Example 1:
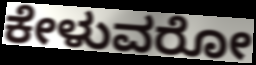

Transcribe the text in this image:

ಕೇಳುವರೋ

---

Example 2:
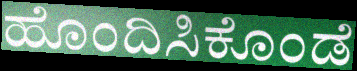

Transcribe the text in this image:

ಹೊಂದಿಸಿಕೊಂಡೆ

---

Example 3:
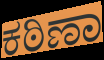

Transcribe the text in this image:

ಕಠಿಣಾ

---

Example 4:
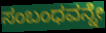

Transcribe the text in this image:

ಸಂಬಂಧವನ್ನೇ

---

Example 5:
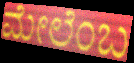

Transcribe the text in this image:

ಮೇಲೆಂಬ